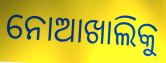
ନୋଆଖାଲିକୁ